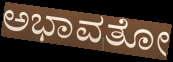
ಅಭಾವತೋ